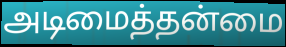
அடிமைத்தன்மை